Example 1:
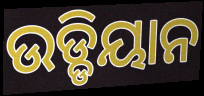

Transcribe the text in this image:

ଉଡ୍ଡିୟାନ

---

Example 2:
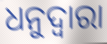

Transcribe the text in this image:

ଧନୁଦ୍ୱାରା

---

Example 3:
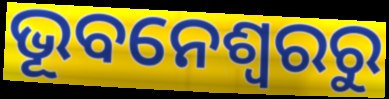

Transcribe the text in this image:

ଭୂବନେଶ୍ୱରରୁ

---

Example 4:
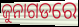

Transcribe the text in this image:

ଜୁନାଗଡରେ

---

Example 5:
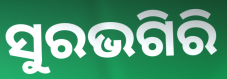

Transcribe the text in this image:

ସୁରଭଗିରି